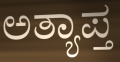
ಅತ್ಯಾಪ್ತ